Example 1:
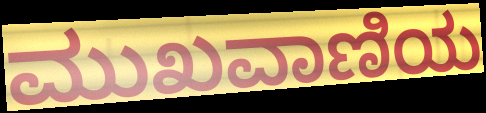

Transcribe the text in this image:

ಮುಖವಾಣಿಯ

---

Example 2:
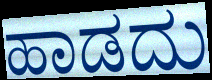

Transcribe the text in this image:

ಹಾಡದು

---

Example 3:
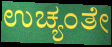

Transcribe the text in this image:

ಉಚ್ಯಂತೇ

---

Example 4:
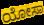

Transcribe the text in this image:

ಯೋಸಾ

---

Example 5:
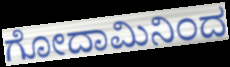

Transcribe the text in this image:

ಗೋದಾಮಿನಿಂದ